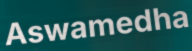
Aswamedha